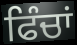
ਫਿੰਚਾਂ